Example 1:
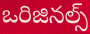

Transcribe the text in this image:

ఒరిజినల్స్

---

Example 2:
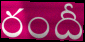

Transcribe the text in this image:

రందీ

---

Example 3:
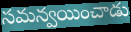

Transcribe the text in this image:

సమన్వయించాడు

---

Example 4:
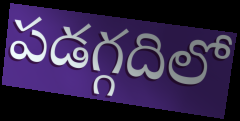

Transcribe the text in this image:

పడగ్గదిలో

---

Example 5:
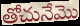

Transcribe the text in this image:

తోచునేమొ